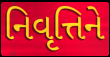
નિવૃત્તિને